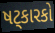
ષટ્કારકો